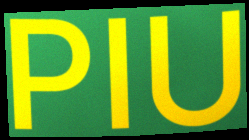
PIU